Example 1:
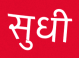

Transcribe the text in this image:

सुधी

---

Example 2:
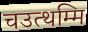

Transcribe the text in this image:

चउत्थम्मि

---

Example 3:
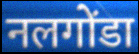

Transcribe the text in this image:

नलगोंडा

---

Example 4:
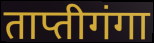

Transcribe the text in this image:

ताप्तीगंगा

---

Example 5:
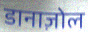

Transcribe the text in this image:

डानाज़ोल